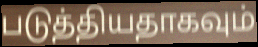
படுத்தியதாகவும்